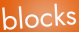
blocks